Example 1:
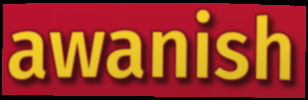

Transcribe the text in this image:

awanish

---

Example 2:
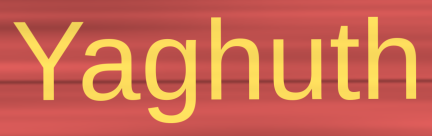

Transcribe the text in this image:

Yaghuth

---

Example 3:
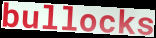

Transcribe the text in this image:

bullocks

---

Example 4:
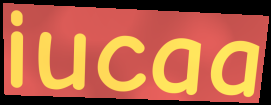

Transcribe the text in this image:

iucaa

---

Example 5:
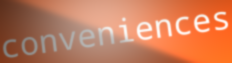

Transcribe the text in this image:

conveniences